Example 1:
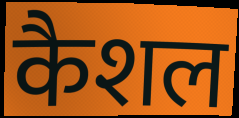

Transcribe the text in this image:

कैशल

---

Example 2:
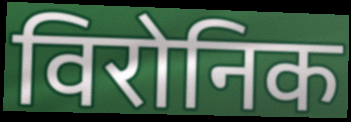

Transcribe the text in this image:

विरोनिक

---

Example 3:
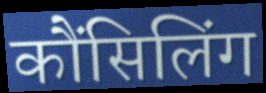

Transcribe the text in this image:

कौंसिलिंग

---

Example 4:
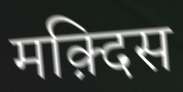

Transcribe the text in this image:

मक़्दिस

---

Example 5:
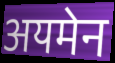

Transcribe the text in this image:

अयमेन